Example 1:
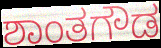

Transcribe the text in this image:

ಶಾಂತಗೌಡ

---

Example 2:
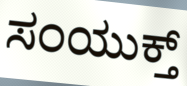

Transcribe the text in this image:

ಸಂಯುಕ್ತ್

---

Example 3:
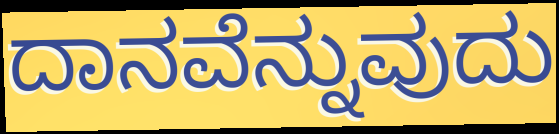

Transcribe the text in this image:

ದಾನವೆನ್ನುವುದು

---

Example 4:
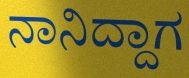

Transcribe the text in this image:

ನಾನಿದ್ದಾಗ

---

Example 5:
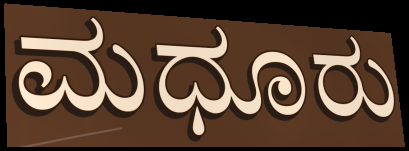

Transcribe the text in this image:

ಮಧೂರು